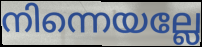
നിന്നെയല്ലേ